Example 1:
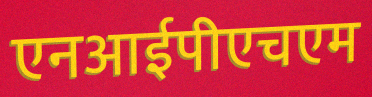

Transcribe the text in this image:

एनआईपीएचएम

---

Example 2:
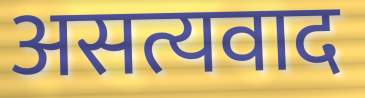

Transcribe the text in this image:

असत्यवाद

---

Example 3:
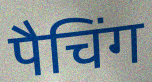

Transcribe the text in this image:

पैचिंग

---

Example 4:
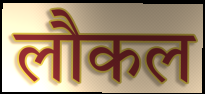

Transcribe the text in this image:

लौकल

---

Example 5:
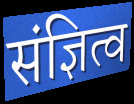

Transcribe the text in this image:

संज्ञित्व